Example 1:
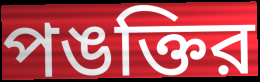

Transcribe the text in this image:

পঙক্তির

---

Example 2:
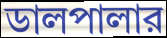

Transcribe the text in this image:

ডালপালার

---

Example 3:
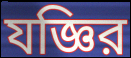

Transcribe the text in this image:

যজ্ঞির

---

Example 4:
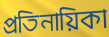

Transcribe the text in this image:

প্রতিনায়িকা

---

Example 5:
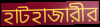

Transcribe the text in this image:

হাটহাজারীর